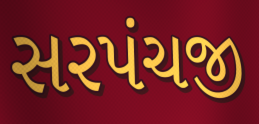
સરપંચજી